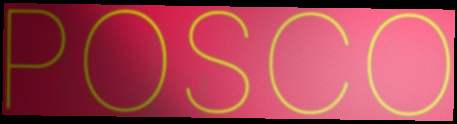
POSCO